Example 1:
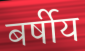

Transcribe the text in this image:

बर्षीय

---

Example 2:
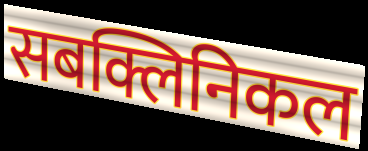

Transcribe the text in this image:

सबक्लिनिकल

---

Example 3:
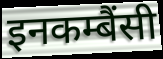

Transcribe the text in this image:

इनकम्बैंसी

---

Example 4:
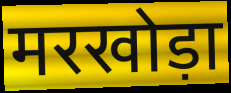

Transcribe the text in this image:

मरखोड़ा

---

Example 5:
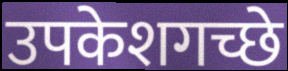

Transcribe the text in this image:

उपकेशगच्छे